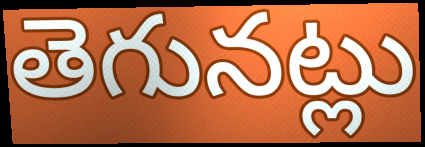
తెగునట్లు